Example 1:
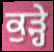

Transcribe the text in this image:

ਕੁੜ੍ਹੇ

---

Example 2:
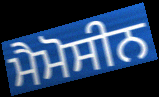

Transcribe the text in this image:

ਮੈਮੋਸੀਨ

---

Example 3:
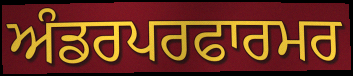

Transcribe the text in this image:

ਅੰਡਰਪਰਫਾਰਮਰ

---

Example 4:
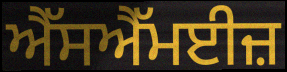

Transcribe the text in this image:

ਐੱਸਐੱਮਈਜ਼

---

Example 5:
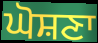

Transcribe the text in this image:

ਘੋਸ਼ਣਾ